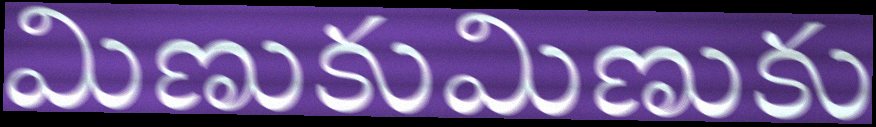
మిణుకుమిణుకు